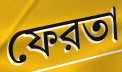
ফেরতা